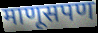
माणूसपण